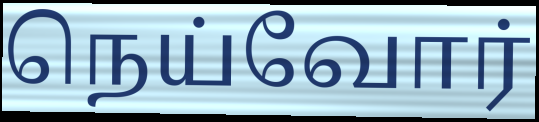
நெய்வோர்